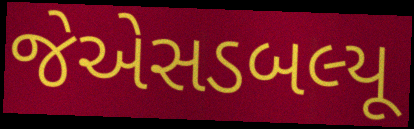
જેએસડબલ્યૂ